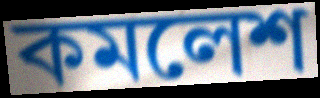
কমলেশ